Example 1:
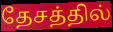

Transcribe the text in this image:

தேசத்தில்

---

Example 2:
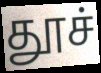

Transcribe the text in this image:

தூச்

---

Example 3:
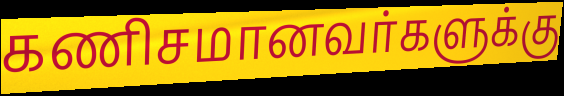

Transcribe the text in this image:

கணிசமானவர்களுக்கு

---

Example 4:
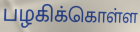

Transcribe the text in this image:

பழகிக்கொள்ள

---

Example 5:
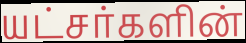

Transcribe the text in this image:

யட்சர்களின்